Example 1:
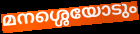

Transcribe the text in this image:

മനശ്ശെയോടും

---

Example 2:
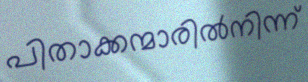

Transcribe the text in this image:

പിതാക്കന്മാരിൽനിന്ന്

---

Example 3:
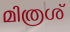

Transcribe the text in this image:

മിത്രശ്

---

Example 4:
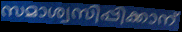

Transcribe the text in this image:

സമാശ്വസിപ്പിക്കാന്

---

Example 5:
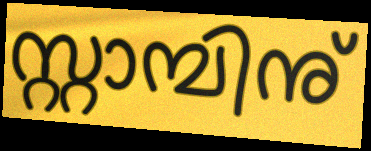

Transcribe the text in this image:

സ്റ്റാമ്പിനു്